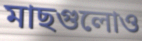
মাছগুলোও